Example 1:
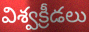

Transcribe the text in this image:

విశ్వక్రీడలు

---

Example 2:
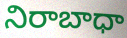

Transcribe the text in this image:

నిరాబాధా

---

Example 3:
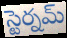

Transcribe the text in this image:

స్టెర్నమ్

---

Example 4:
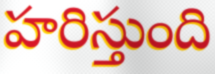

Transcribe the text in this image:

హరిస్తుంది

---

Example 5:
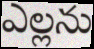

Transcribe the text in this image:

ఎల్లను